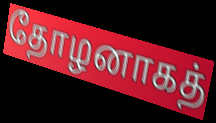
தோழனாகத்